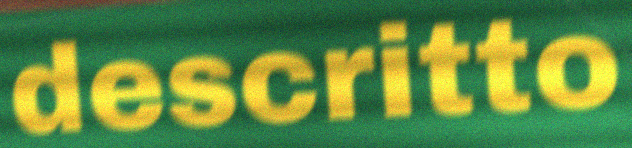
descritto